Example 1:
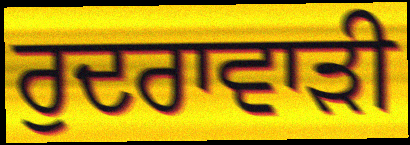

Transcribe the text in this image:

ਰੁਦਰਾਵਾੜੀ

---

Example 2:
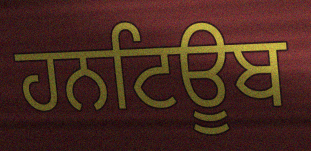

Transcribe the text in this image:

ਹਨਟਿਊਬ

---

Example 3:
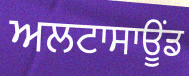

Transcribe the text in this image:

ਅਲਟਾਸਾਊਂਡ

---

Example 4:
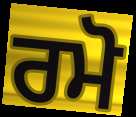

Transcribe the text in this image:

ਰਮੋ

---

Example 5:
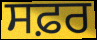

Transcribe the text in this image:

ਸਫ਼ਰ